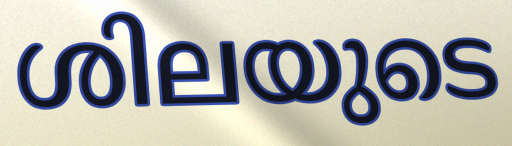
ശിലയുടെ